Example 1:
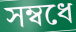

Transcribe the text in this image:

সম্বধে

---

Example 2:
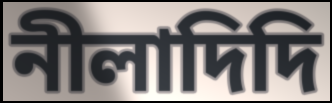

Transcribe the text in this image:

নীলাদিদি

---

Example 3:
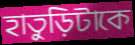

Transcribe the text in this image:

হাতুড়িটাকে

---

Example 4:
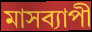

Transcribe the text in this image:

মাসব্যাপী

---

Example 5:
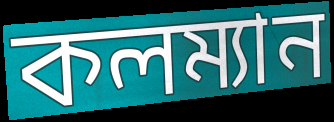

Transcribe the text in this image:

কলম্যান